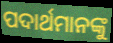
ପଦାର୍ଥମାନଙ୍କୁ